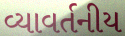
વ્યાવર્તનીય